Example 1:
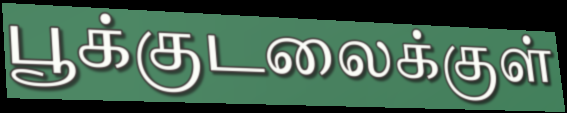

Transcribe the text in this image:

பூக்குடலைக்குள்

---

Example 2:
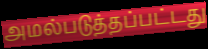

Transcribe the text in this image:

அமல்படுத்தப்பட்டது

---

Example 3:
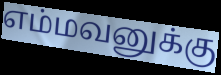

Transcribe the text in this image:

எம்மவனுக்கு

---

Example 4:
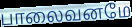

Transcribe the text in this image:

பாலைவனமே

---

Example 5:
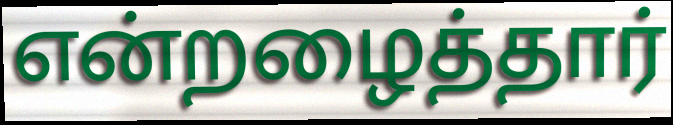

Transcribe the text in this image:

என்றழைத்தார்